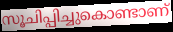
സൂചിപ്പിച്ചുകൊണ്ടാണ്